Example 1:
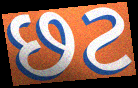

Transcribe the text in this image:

છટ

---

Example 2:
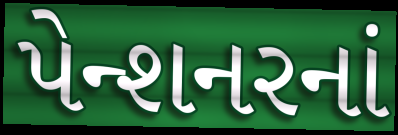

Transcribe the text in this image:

પેન્શનરનાં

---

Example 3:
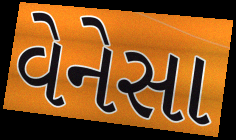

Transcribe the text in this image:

વેનેસા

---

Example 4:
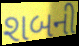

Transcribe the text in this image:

શબની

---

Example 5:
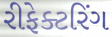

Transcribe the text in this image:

રીફેક્ટરિંગ